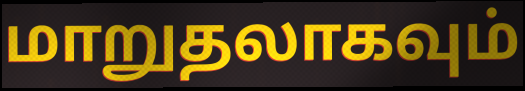
மாறுதலாகவும்